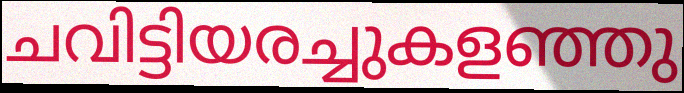
ചവിട്ടിയരച്ചുകളഞ്ഞു